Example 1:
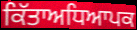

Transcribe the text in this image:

ਕਿੱਤਾਅਧਿਆਪਕ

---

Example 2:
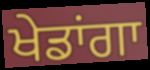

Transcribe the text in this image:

ਖੇਡਾਂਗਾ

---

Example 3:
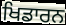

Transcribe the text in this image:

ਖਿਡਾਰਨ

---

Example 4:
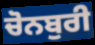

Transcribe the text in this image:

ਚੋਨਬੁਰੀ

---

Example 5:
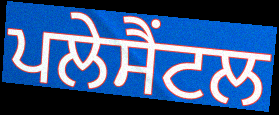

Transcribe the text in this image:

ਪਲੇਸੈਂਟਲ